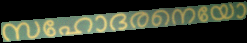
സഹോദരനെയോ